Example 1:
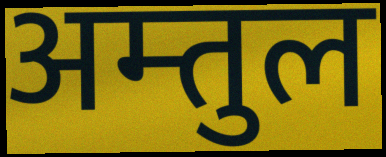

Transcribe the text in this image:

अम्तुल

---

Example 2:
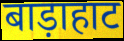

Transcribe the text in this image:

बाड़ाहाट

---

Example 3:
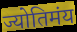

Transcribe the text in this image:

ज्योतिमंय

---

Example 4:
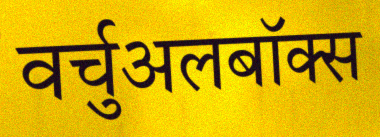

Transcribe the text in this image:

वर्चुअलबॉक्स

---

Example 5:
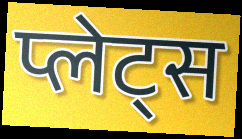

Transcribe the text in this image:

प्‍लेट्स